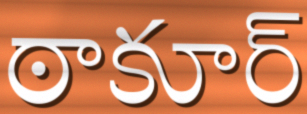
ఠాకూర్